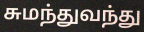
சுமந்துவந்து